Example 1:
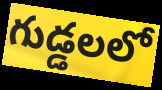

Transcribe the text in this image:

గుడ్డలలో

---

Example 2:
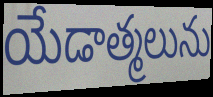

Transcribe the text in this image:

యేడాత్మలును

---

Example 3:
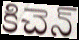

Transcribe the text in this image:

కిచెన్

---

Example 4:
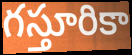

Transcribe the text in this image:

గస్తూరికా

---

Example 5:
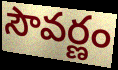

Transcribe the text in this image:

సౌవర్ణం